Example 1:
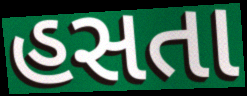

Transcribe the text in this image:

હસતા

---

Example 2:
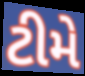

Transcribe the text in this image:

ટીમે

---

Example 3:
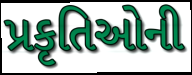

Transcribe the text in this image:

પ્રકૃતિઓની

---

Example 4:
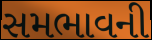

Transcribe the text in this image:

સમભાવની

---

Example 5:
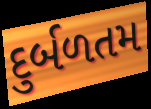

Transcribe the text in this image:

દુર્બળતમ